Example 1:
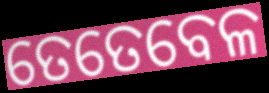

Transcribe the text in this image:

ତେତେବେଳ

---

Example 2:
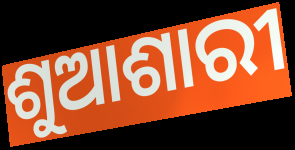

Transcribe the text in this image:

ଶୁଆଶାରୀ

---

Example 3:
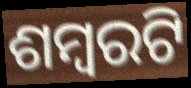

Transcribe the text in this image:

ଶମ୍ବରଟି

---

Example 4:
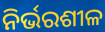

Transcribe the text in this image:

ନିର୍ଭରଶୀଳ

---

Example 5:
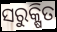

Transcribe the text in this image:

ସରୁକ୍ଷିତ